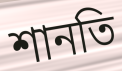
শানতি